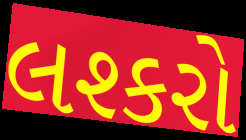
લશ્કરો